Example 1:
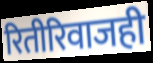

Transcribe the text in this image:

रितीरिवाजही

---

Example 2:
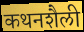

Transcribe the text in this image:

कथनशैली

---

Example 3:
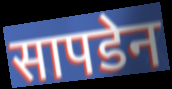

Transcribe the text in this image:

सापडेन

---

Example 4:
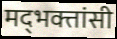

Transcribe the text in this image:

मद्भक्तांसी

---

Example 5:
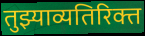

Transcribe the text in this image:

तुझ्याव्यतिरिक्त